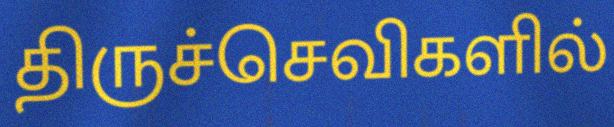
திருச்செவிகளில்